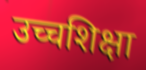
उच्चशिक्षा